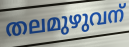
തലമുഴുവന്